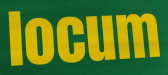
locum